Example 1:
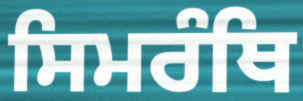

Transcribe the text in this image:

ਸਿਮਰੰਥਿ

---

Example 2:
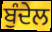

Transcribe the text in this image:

ਬੁੰਦੇਲ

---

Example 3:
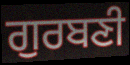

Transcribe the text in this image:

ਗੁਰਬਣੀ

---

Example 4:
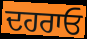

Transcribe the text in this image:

ਦਹਰਾਓ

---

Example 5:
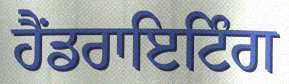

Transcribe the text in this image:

ਹੈਂਡਰਾਇਟਿੰਗ